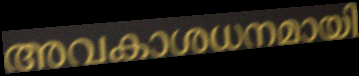
അവകാശധനമായി